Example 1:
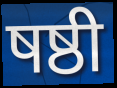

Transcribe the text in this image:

षष्ठी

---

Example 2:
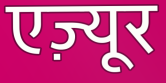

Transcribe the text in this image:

एज़्यूर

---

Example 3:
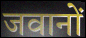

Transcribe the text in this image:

जवानों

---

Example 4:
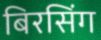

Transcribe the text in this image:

बिरसिंग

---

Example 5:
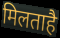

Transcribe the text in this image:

मिलताहै